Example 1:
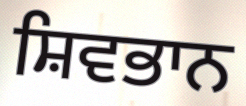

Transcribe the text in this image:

ਸ਼ਿਵਭਾਨ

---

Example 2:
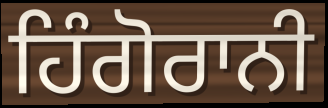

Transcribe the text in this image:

ਹਿੰਗੋਰਾਨੀ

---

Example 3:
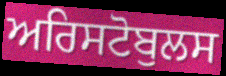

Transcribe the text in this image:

ਅਰਿਸਟੋਬੁਲਸ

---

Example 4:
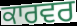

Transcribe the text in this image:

ਕਾਰਵਰ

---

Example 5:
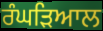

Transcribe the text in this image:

ਰੰਘੜਿਆਲ